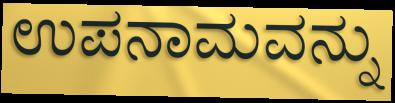
ಉಪನಾಮವನ್ನು